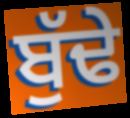
ਬੁੱਢੇ